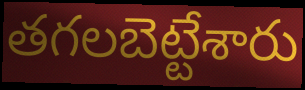
తగలబెట్టేశారు